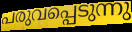
പരുവപ്പെടുന്നു